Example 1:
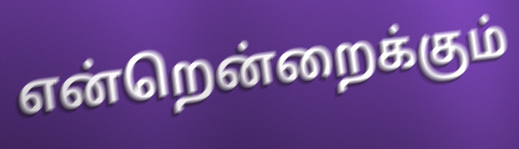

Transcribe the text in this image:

என்றென்றைக்கும்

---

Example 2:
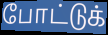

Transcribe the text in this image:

போட்டுக்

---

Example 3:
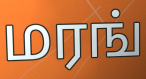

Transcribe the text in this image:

மரங்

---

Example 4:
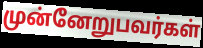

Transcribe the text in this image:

முன்னேறுபவர்கள்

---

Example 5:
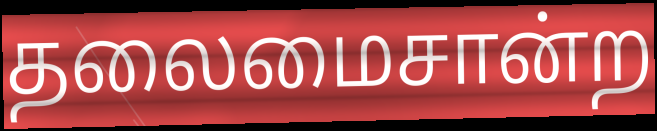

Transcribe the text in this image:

தலைமைசான்ற